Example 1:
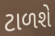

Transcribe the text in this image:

ટાળશે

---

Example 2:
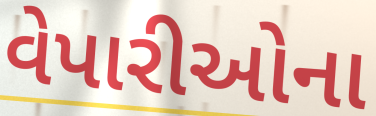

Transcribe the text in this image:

વેપારીઓના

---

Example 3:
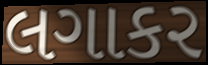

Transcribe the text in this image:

લગાકર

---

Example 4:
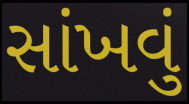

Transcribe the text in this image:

સાંખવું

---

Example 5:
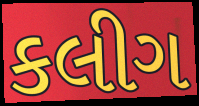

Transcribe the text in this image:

કલીગ